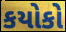
કયોકો